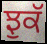
ਝੁਕੱ